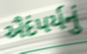
ઐદંપર્યનું